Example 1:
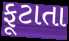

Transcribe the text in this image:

ફૂટાતા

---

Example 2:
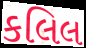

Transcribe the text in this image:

કલિલ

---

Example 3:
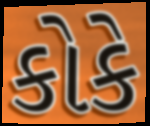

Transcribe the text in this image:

કોકે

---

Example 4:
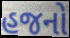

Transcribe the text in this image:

હજનો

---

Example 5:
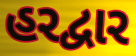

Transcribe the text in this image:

હરદ્વાર